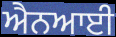
ਐਨਆਈ